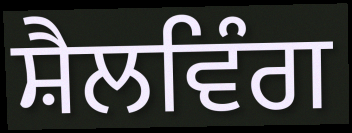
ਸ਼ੈਲਵਿੰਗ